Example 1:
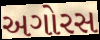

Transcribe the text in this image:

અગોરસ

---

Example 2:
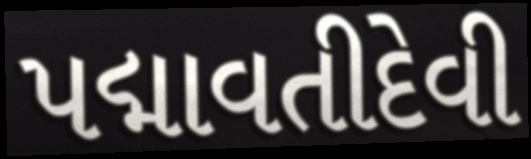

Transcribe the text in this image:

પદ્માવતીદેવી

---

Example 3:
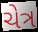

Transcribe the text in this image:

ચેત્ર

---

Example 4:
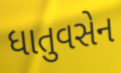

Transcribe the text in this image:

ધાતુવસેન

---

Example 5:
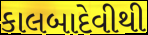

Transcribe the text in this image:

કાલબાદેવીથી